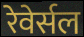
रेवेर्सल